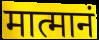
मात्मानं